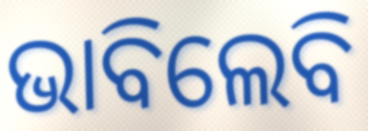
ଭାବିଲେବି